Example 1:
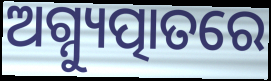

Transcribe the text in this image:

ଅଗ୍ନ୍ୟୁତ୍ପାତରେ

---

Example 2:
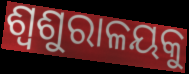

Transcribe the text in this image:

ଶ୍ୱଶୁରାଳୟକୁ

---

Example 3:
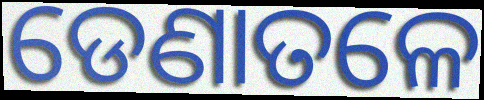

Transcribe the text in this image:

ଡେଣାତଳେ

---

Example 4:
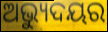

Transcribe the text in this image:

ଅଭ୍ୟୁଦୟର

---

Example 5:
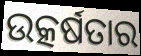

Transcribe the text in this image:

ଉତ୍କର୍ଷତାର